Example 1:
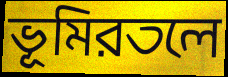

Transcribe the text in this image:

ভূমিরতলে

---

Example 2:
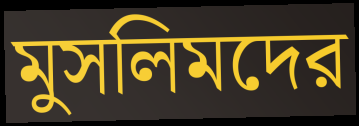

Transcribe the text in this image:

মুসলিমদের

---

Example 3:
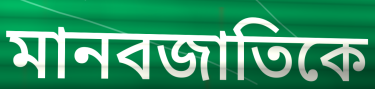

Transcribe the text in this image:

মানবজাতিকে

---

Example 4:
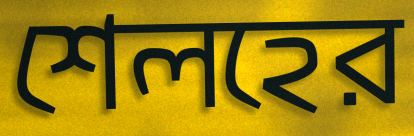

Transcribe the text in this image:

শেলহের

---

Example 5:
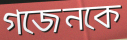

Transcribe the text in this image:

গজেনকে